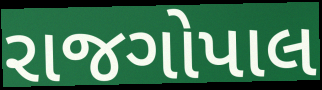
રાજગોપાલ